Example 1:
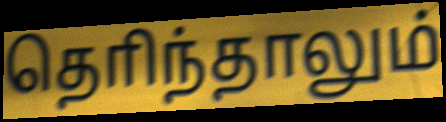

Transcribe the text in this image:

தெரிந்தாலும்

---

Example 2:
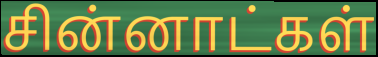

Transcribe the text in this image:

சின்னாட்கள்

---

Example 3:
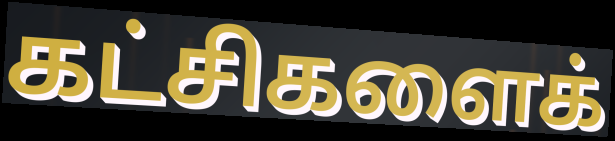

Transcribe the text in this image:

கட்சிகளைக்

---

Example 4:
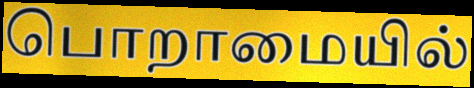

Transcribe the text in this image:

பொறாமையில்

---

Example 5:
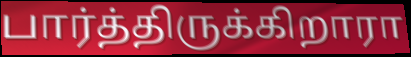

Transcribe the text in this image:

பார்த்திருக்கிறாரா